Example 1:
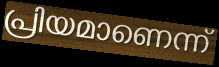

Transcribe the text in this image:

പ്രിയമാണെന്ന്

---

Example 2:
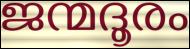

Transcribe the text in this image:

ജന്മദൂരം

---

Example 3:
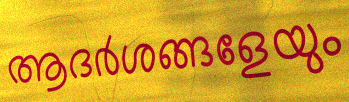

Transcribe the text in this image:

ആദർശങ്ങളേയും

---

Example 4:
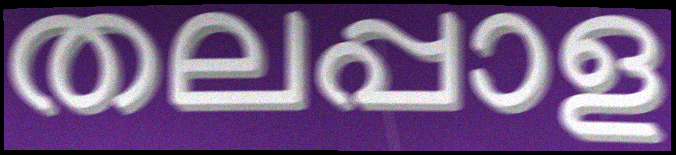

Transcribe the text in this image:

തലപ്പാള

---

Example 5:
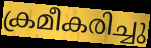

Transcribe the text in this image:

ക്രമീകരിച്ചു